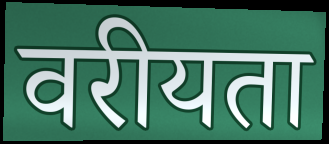
वरीयता